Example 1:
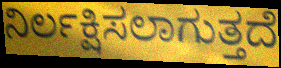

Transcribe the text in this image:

ನಿರ್ಲಕ್ಷಿಸಲಾಗುತ್ತದೆ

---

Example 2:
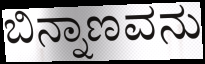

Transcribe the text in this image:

ಬಿನ್ನಾಣವನು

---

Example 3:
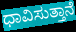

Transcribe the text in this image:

ಧಾವಿಸುತ್ತಾನೆ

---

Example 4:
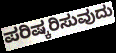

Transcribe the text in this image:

ಪರಿಷ್ಕರಿಸುವುದು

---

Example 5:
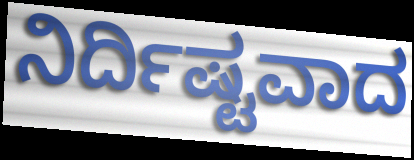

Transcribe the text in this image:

ನಿರ್ದಿಷ್ಟವಾದ